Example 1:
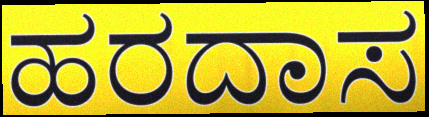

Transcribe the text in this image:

ಹರದಾಸ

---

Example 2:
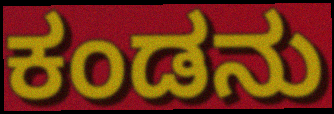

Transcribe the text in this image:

ಕಂಡನು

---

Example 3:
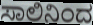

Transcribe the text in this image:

ಸಾಲಿನಿಂದ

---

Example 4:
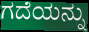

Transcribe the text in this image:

ಗದೆಯನ್ನು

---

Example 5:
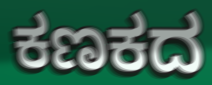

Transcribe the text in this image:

ಕಣಕದ